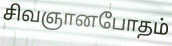
சிவஞானபோதம்